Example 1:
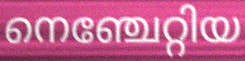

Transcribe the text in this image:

നെഞ്ചേറ്റിയ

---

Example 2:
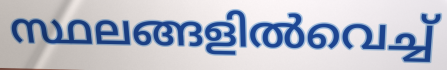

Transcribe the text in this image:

സ്ഥലങ്ങളിൽവെച്ച്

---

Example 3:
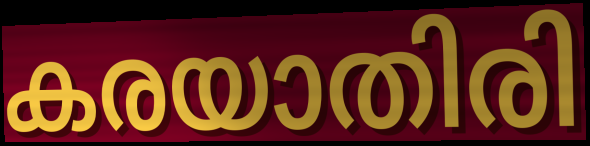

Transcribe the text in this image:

കരയാതിരി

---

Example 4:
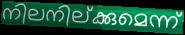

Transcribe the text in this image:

നിലനില്ക്കുമെന്ന്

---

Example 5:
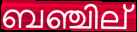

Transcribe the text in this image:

ബഞ്ചില്